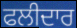
ਫਲੀਦਾਰ